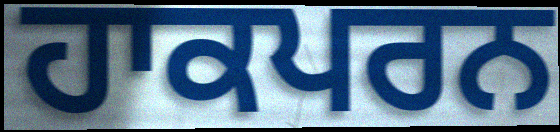
ਹਾਕਪਰਨ